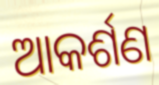
ଆକର୍ଶଣ